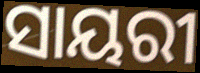
ସାୟରୀ